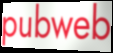
pubweb